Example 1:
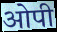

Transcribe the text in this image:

ओपी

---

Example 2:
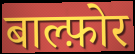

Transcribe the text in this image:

बाल्फ़ोर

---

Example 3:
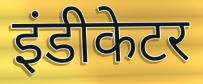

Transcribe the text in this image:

इंडीकेटर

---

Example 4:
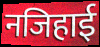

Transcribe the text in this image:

नजिहाई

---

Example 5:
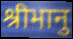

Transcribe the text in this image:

श्रीभानु